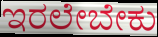
ಇರಲೇಬೇಕು